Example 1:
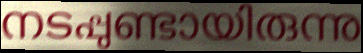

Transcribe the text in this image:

നടപ്പുണ്ടായിരുന്നു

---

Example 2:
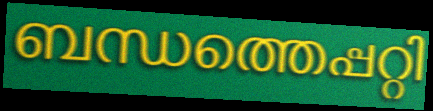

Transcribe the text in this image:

ബന്ധത്തെപ്പറ്റി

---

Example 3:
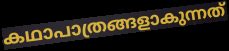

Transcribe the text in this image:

കഥാപാത്രങ്ങളാകുന്നത്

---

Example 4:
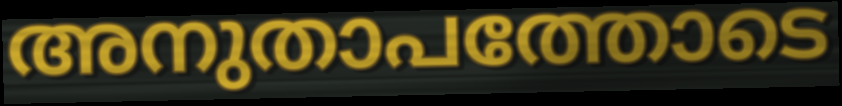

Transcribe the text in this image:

അനുതാപത്തോടെ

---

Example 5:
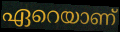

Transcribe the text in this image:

ഏറെയാണ്